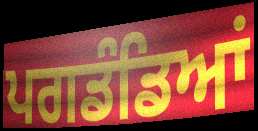
ਪਗਡੰਡਿਆਂ